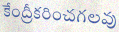
కేంద్రీకరించగలవు